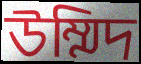
উম্মিদ